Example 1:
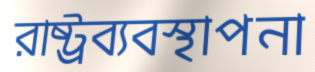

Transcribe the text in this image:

রাষ্ট্রব্যবস্থাপনা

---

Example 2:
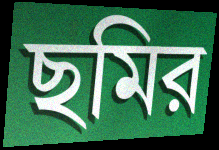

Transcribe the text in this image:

ছমির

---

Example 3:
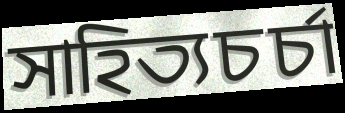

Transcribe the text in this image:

সাহিত্যচর্চা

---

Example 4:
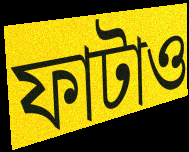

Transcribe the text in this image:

ফাটাও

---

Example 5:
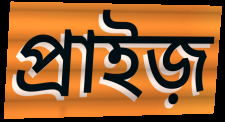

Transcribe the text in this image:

প্রাইজ়